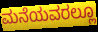
ಮನೆಯವರಲ್ಲೂ